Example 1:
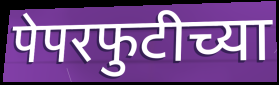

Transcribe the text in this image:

पेपरफुटीच्या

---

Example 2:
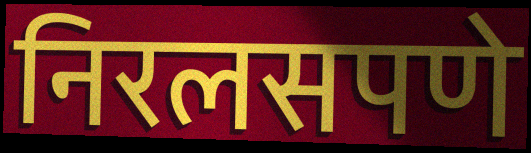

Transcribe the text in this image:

निरलसपणे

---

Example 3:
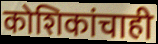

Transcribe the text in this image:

कोशिकांचाही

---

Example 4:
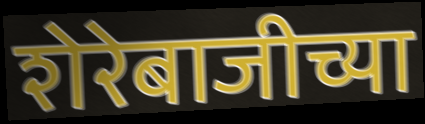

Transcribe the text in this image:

शेरेबाजीच्या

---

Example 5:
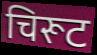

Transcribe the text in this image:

चिरूट